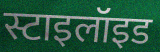
स्टाइलॉइड